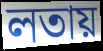
লতায়